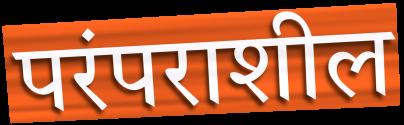
परंपराशील